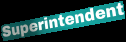
Superintendent